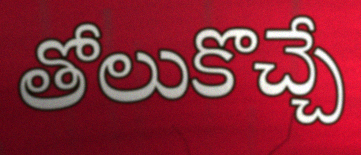
తోలుకొచ్చే